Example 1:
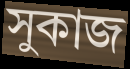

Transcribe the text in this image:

সুকাজ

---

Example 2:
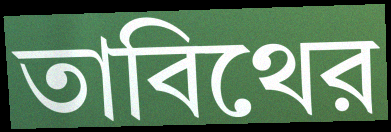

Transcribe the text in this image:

তাবিথের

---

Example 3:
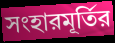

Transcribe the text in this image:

সংহারমূর্তির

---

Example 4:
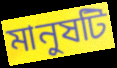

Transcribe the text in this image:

মানুষটি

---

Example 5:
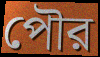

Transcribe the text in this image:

পৌর